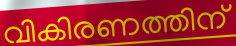
വികിരണത്തിന്